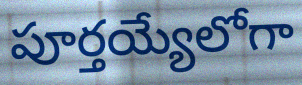
పూర్తయ్యేలోగా